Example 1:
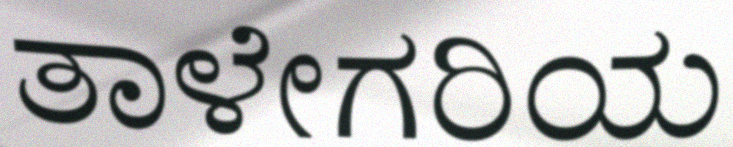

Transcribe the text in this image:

ತಾಳೇಗರಿಯ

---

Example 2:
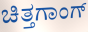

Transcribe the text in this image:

ಚಿತ್ತಗಾಂಗ್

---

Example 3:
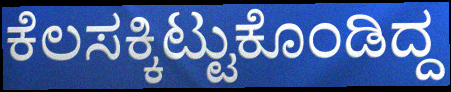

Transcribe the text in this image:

ಕೆಲಸಕ್ಕಿಟ್ಟುಕೊಂಡಿದ್ದ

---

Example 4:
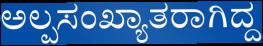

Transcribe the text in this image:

ಅಲ್ಪಸಂಖ್ಯಾತರಾಗಿದ್ದ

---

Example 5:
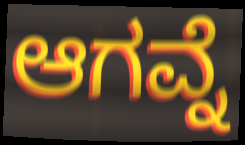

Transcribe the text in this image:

ಆಗವ್ನೆ